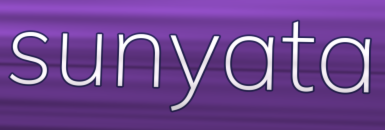
sunyata